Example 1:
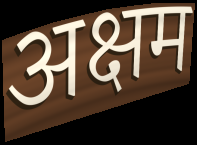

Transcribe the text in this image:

अक्षम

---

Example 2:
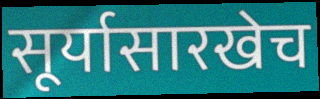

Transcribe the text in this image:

सूर्यासारखेच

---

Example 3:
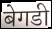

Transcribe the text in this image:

बेगडी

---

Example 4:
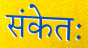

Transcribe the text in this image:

संकेतः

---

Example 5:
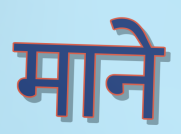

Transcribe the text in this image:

माने